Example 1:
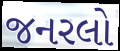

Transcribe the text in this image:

જનરલો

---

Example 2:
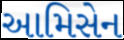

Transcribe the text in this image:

આમિસેન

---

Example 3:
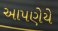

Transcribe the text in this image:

આપણેયે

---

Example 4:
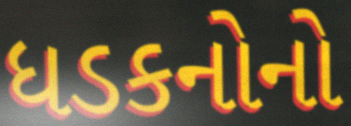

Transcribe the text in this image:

ધડકનોનો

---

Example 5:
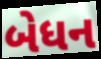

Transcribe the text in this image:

બેધન